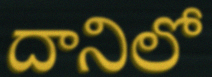
దానిలో